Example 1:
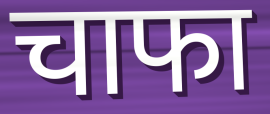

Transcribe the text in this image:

चाफा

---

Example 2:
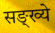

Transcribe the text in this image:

सङ्ख्ये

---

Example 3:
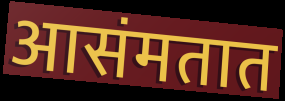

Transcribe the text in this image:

आसंमतात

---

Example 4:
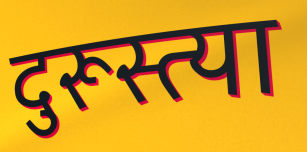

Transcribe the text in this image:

दुरूस्त्या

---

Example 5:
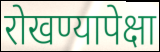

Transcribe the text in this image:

रोखण्यापेक्षा